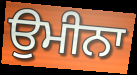
ਉਮੀਨਾ